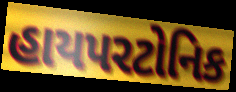
હાયપરટોનિક